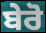
ਬੇਰੋ